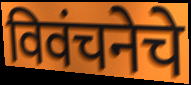
विवंचनेचे